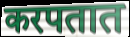
करपतात